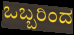
ಒಬ್ಬರಿಂದ